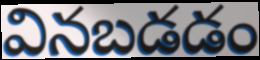
వినబడడం